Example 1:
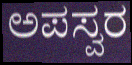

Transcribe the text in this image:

ಅಪಸ್ವರ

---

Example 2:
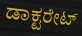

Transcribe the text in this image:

ಡಾಕ್ಟರೇಟ್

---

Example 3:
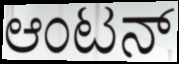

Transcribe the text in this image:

ಆಂಟನ್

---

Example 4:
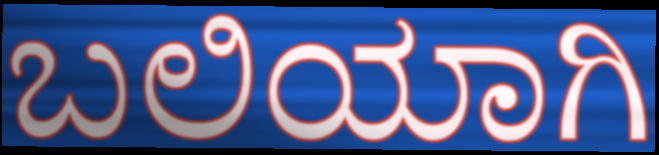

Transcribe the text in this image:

ಬಲಿಯಾಗಿ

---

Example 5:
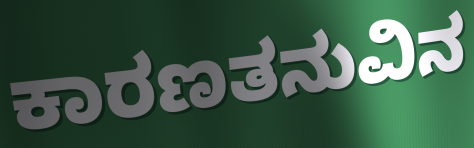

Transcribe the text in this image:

ಕಾರಣತನುವಿನ